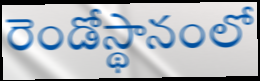
రెండోస్థానంలో